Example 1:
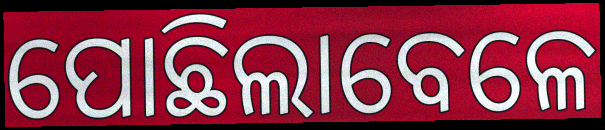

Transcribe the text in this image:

ପୋଛିଲାବେଳେ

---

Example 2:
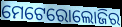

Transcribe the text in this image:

ମେଟେରୋଲୋଜିର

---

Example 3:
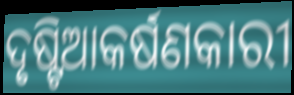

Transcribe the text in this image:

ଦୃଷ୍ଟିଆକର୍ଷଣକାରୀ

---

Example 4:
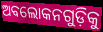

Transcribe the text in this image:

ଅବଲୋକନଗୁଡ଼ିକୁ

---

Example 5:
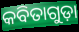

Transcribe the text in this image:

କବିତାଗୁଡ଼ା